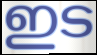
ഇട